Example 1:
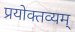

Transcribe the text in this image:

प्रयोक्तव्यम्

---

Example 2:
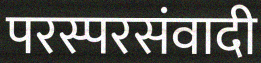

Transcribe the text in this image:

परस्परसंवादी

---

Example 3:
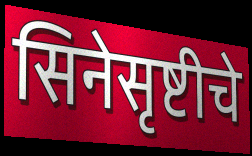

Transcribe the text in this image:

सिनेसृष्टीचे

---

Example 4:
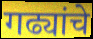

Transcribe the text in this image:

गढ्यांचे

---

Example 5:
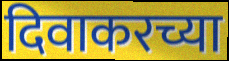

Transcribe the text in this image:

दिवाकरच्या